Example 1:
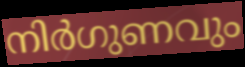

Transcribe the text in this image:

നിർഗുണവും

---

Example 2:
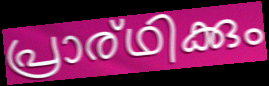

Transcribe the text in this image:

പ്രാര്ഥിക്കും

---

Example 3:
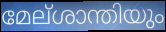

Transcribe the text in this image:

മേല്ശാന്തിയും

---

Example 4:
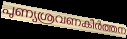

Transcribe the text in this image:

പുണ്യശ്രവണകീർത്തന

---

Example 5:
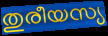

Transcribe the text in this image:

തുരീയസ്യ